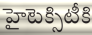
హైటెక్సిటీకి